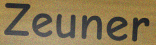
Zeuner